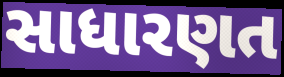
સાધારણત